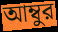
আম্বুর